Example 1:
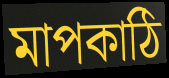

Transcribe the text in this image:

মাপকাঠি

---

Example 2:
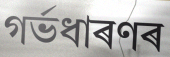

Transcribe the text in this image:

গৰ্ভধাৰণৰ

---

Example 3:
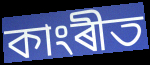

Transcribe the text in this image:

কাংৰীত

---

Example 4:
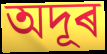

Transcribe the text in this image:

অদূৰ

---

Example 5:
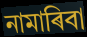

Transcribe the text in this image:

নামাৰিবা